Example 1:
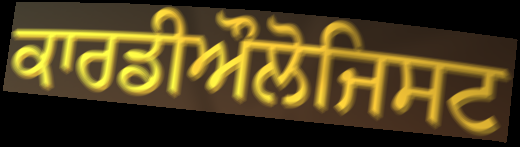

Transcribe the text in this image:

ਕਾਰਡੀਔਲੋਜਿਸਟ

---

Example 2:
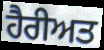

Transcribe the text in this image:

ਹੈਰੀਅਤ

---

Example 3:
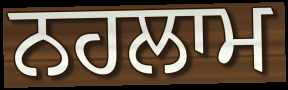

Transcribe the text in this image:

ਨਹਲਾਮ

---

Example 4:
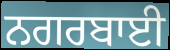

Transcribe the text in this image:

ਨਗਰਬਾਈ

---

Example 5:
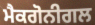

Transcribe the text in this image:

ਮੈਕਗੋਨੀਗਲ